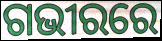
ଗଭୀରରେ